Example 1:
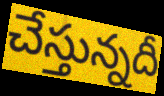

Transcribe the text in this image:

చేస్తున్నదీ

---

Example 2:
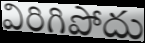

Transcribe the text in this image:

విరిగిపోదు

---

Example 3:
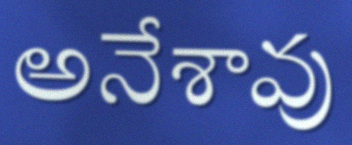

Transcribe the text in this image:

అనేశావు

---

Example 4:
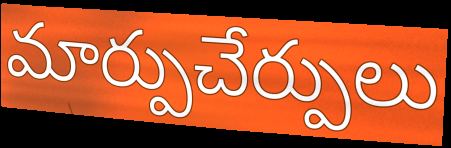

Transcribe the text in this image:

మార్పుచేర్పులు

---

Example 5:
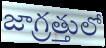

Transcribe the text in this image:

జాగ్రత్తులో